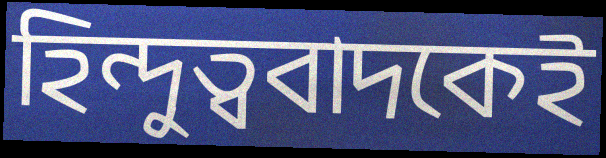
হিন্দুত্ববাদকেই